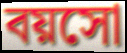
বয়সো